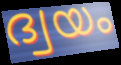
ദ്വയം